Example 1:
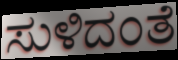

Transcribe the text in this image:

ಸುಳಿದಂತೆ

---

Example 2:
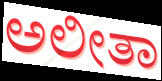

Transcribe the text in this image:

ಅಲೀತಾ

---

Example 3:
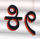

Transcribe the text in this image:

ಕೀ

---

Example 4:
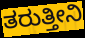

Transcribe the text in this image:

ತರುತ್ತೀನಿ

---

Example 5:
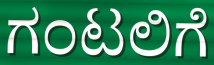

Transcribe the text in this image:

ಗಂಟಲಿಗೆ